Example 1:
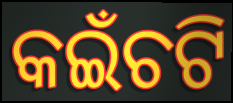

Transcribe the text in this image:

କଇଁଚଟି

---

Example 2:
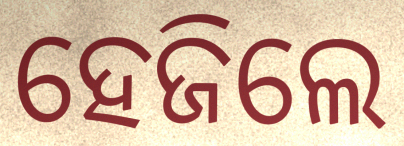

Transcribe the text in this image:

ହେଜିଲେ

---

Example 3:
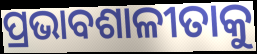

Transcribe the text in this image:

ପ୍ରଭାବଶାଳୀତାକୁ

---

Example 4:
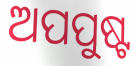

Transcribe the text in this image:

ଅପପୁଷ୍ଟ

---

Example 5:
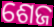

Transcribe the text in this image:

ଶେଜ